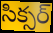
సిక్సర్